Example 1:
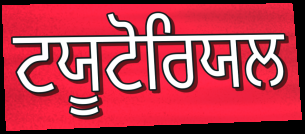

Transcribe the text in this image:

ਟਯੂਟੋਰਿਯਲ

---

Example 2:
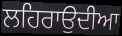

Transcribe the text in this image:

ਲਹਿਰਾਉਦੀਆ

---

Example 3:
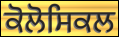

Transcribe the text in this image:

ਕੋਲੋਸਿਕਲ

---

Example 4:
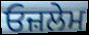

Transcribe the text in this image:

ਓਜ਼ਲੇਮ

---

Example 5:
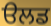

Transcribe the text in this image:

ੳਲਡ